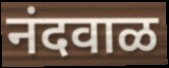
नंदवाळ